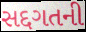
સદ્દગતની